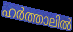
ഹർത്താലിൽ